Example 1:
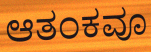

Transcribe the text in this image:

ಆತಂಕವೂ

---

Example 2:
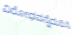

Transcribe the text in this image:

ವಿರೋಧವನ್ನೆದುರಿಸಿ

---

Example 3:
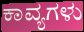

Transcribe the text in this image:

ಕಾವ್ಯಗಳು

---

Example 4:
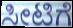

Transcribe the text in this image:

ಸೀಟಿಗೆ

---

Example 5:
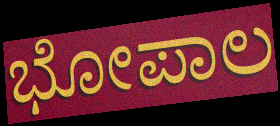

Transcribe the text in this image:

ಭೋಪಾಲ